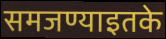
समजण्याइतके